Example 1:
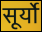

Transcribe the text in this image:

सूर्यो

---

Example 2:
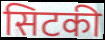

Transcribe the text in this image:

सिटकी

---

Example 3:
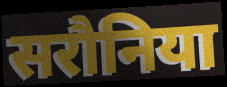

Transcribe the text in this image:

सरौनिया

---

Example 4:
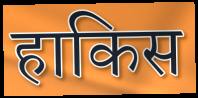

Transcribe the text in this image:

हाकिस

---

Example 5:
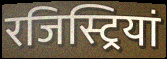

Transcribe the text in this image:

रजिस्ट्रियां